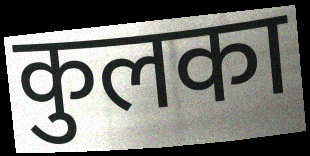
कुलका